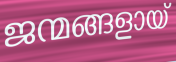
ജന്മങ്ങളായ്